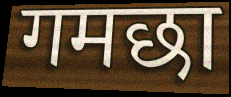
गमछा